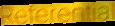
Referential